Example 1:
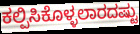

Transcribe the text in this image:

ಕಲ್ಪಿಸಿಕೊಳ್ಳಲಾರದಷ್ಟು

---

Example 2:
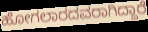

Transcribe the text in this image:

ಹೋಗಲಾರದವರಾಗಿದ್ದಾರೆ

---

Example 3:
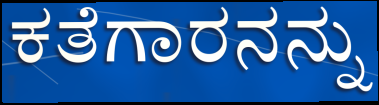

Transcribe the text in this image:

ಕತೆಗಾರನನ್ನು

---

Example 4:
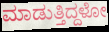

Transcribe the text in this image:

ಮಾಡುತ್ತಿದ್ದಳೋ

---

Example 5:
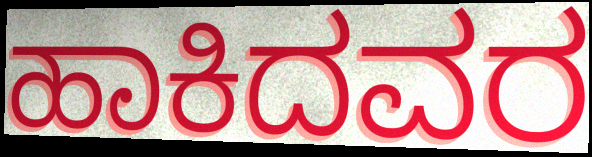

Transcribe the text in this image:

ಹಾಕಿದವರ